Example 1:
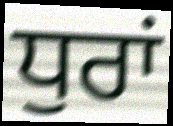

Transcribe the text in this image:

ਧੁਰਾਂ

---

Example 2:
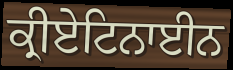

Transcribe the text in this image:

ਕ੍ਰੀਏਟਿਨਾਈਨ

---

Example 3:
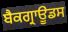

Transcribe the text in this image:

ਬੈਕਗ੍ਰਾਊਡਸ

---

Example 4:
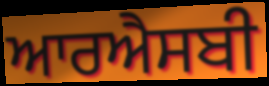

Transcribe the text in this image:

ਆਰਐਸਬੀ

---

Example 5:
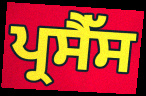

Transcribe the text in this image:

ਪ੍ਰਸੈੱਸ